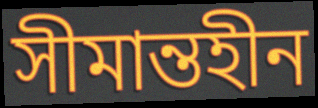
সীমান্তহীন